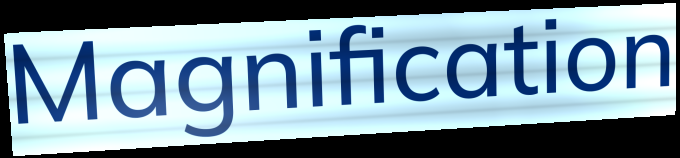
Magnification